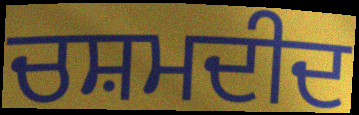
ਚਸ਼ਮਦੀਦ